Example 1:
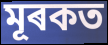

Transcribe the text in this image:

মূৰকত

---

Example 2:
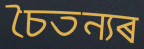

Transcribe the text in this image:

চৈতন্যৰ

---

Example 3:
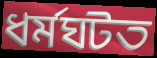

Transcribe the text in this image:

ধৰ্মঘটত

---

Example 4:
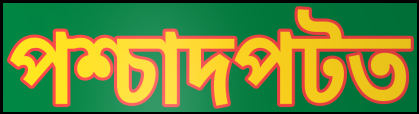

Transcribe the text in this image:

পশ্চাদপটত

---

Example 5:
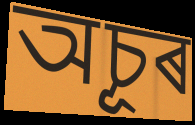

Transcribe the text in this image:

অচূৰ